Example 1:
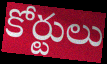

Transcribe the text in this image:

కోర్టులు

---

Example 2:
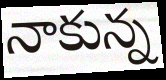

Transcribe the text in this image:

నాకున్న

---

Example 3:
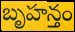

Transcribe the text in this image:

బృహన్తం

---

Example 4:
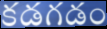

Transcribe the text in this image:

కడగడం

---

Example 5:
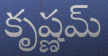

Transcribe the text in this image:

కృష్ణమ్